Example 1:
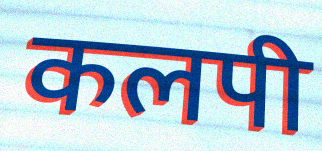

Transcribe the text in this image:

कलपी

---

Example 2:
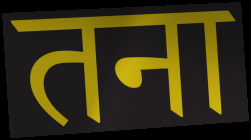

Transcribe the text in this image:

तना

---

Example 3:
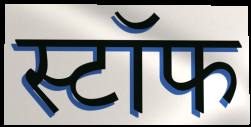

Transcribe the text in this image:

स्टॉफ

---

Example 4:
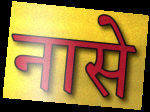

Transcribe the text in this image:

नासे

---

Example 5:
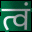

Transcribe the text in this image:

त्वं